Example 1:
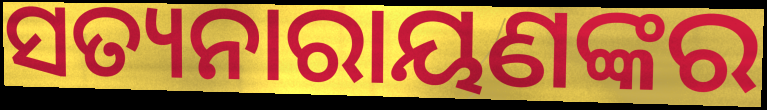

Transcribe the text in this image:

ସତ୍ୟନାରାୟଣଙ୍କର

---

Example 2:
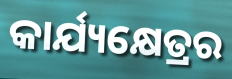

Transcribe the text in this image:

କାର୍ଯ୍ୟକ୍ଷେତ୍ରର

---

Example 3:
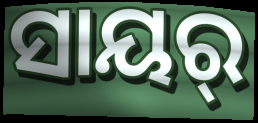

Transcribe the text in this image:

ସାୟର୍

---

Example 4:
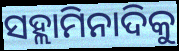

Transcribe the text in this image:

ସହ୍ଲାମିନାଦିକୁ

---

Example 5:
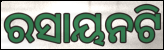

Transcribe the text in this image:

ରସାୟନଟି